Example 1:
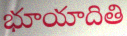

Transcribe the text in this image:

భూయాదితి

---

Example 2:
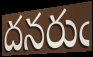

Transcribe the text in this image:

దనరుఁ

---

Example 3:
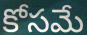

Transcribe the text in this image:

కోసమే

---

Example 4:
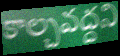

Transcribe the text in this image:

కాల్చవద్దని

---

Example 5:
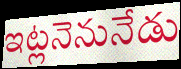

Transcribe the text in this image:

ఇట్లనెనునేడు